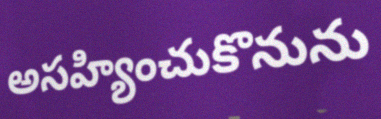
అసహ్యించుకొనును